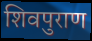
शिवपुराण